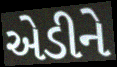
એડીને